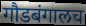
गौडबंगालच